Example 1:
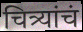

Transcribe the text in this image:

चित्र्यांचं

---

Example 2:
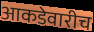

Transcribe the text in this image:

आकडेवारीच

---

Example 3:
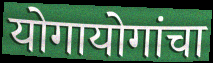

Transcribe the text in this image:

योगायोगांचा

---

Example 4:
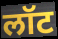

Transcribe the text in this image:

लॉट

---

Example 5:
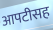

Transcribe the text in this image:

आपटीसह